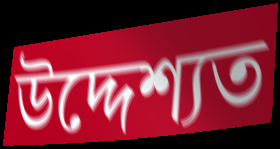
উদ্দেশ্যত